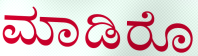
ಮಾಡಿರೊ